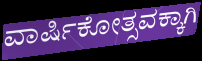
ವಾರ್ಷಿಕೋತ್ಸವಕ್ಕಾಗಿ